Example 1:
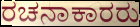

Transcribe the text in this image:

ರಚನಾಕಾರರು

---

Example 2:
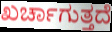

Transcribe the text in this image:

ಖರ್ಚಾಗುತ್ತದೆ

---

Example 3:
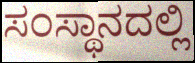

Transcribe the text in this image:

ಸಂಸ್ಥಾನದಲ್ಲಿ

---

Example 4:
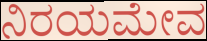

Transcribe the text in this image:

ನಿರಯಮೇವ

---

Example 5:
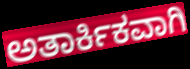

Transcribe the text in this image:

ಅತಾರ್ಕಿಕವಾಗಿ